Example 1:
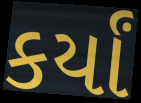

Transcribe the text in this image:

કર્યાં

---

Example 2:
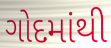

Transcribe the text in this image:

ગોદમાંથી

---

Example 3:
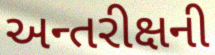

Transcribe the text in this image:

અન્તરીક્ષની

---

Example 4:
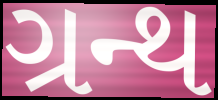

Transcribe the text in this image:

ગ્રન્થ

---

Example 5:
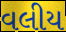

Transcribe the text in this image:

વલીય